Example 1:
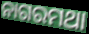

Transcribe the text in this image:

ନାଗରମଥା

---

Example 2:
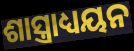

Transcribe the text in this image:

ଶାସ୍ତ୍ରାଧ୍ୟୟନ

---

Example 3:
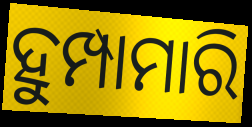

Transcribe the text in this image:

ହୁମ୍ପାମାରି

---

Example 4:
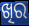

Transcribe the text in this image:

ଖିର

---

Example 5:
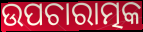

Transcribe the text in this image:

ଉପଚାରାତ୍ମକ